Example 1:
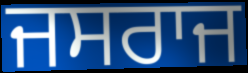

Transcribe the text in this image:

ਜਸਰਾਜ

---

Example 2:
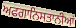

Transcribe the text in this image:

ਅਫਗਾਨਿਸਤਾਨੀਆਂ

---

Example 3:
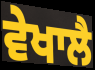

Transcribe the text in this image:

ਵੇਖਾਲੈ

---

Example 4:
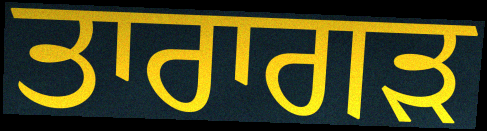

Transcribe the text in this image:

ਤਾਰਾਗੜ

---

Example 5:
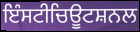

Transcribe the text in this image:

ਇੰਸਟੀਚਿਊਟਸ਼ਨਲ